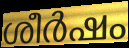
ശീർഷം